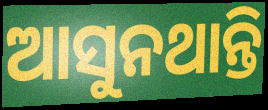
ଆସୁନଥାନ୍ତି